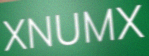
XNUMX